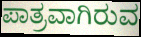
ಪಾತ್ರವಾಗಿರುವ